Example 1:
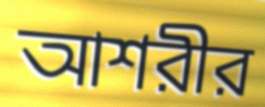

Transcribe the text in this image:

আশরীর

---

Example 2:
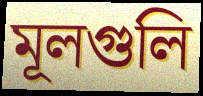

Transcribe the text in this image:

মূলগুলি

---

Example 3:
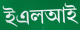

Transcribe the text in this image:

ইএলআই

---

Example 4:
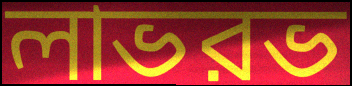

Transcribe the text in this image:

লাভরভ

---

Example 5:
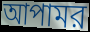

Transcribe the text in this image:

আপামর